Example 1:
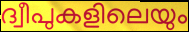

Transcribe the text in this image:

ദ്വീപുകളിലെയും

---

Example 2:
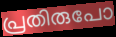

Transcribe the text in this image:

പ്രതിരുപോ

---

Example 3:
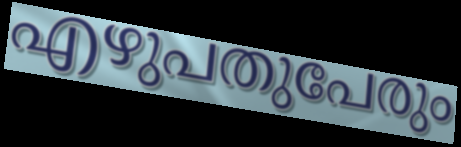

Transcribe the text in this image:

എഴുപതുപേരും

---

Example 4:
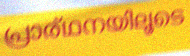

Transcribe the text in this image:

പ്രാര്ഥനയിലൂടെ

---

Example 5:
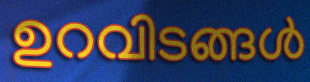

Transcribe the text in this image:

ഉറവിടങ്ങൾ